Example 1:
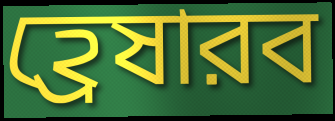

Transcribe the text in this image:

হ্রেষারব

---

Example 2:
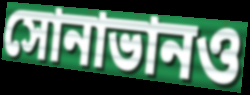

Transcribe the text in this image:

সোনাভানও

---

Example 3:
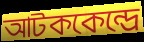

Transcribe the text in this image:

আটককেন্দ্রে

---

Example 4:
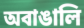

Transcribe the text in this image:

অবাঙালি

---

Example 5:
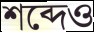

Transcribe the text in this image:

শব্দেও